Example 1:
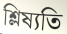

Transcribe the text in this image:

শ্লিষ্যতি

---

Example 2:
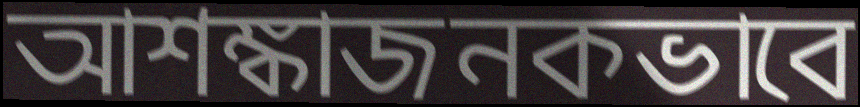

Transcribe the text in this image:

আশঙ্কাজনকভাবে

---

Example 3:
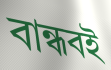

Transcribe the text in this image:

বান্ধবই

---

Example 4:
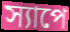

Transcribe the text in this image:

স্যাপে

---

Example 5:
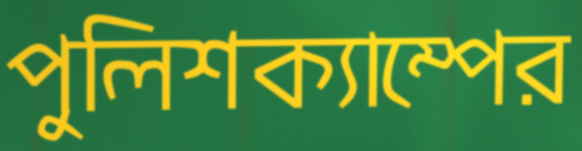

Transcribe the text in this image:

পুলিশক্যাম্পের